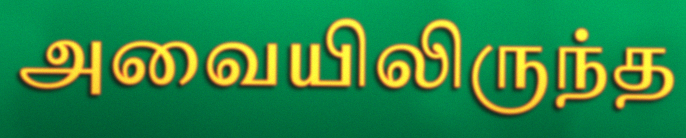
அவையிலிருந்த